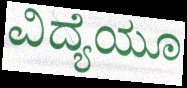
ವಿದ್ಯೆಯೂ